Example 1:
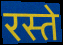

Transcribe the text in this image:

रस्ते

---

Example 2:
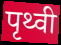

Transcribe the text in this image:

पृथ्वी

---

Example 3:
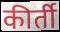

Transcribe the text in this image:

कीर्ती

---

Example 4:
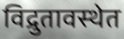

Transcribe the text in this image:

विद्रुतावस्थेत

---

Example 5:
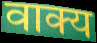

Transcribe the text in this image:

वाक्य